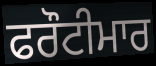
ਫਰੌਟੀਮਾਰ